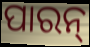
ପାରନ୍